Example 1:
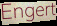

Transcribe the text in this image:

Engert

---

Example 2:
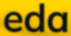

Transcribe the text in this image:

eda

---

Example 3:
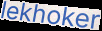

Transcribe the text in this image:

lekhoker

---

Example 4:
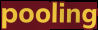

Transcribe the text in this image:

pooling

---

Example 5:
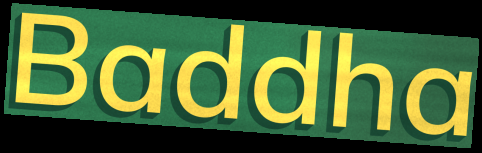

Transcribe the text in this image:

Baddha